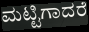
ಮಟ್ಟಿಗಾದರೆ